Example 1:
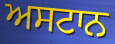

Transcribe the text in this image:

ਅਸਟਾਨ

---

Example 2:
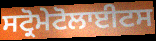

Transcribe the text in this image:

ਸਟ੍ਰੋਮੇਟੋਲਾਈਟਸ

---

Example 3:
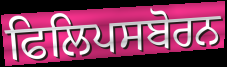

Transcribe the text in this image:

ਫਿਲਿਪਸਬੋਰਨ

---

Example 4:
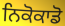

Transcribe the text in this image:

ਨਿਕੋਕਾਡੋ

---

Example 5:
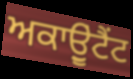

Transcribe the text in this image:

ਅਕਾਉੂਂਟੈਂਟ